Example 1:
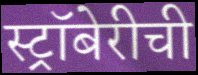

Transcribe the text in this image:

स्ट्रॉबेरीची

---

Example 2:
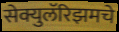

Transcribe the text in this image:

सेक्युलॅरिझमचे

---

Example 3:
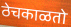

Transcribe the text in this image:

ठेचकाळतो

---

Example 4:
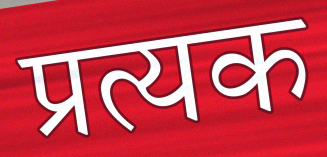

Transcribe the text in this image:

प्रत्यक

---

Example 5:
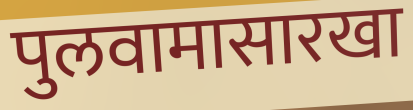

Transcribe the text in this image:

पुलवामासारखा